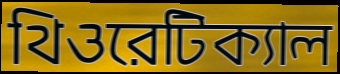
থিওরেটিক্যাল